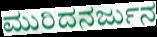
ಮುರಿದನರ್ಜುನ